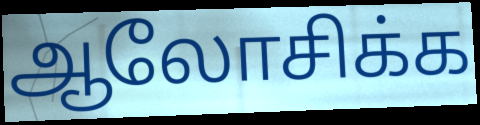
ஆலோசிக்க